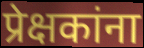
प्रेक्षकांना